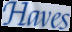
Haves